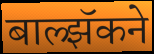
बाल्झॅकने